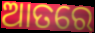
ଆତରେ